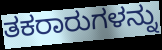
ತಕರಾರುಗಳನ್ನು